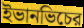
ইভানভিচের